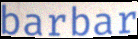
barbar